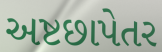
અષ્ટછાપેતર